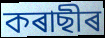
কৰাছীৰ